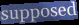
supposed